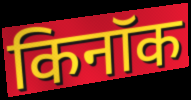
किनॉक